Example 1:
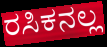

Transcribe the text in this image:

ರಸಿಕನಲ್ಲ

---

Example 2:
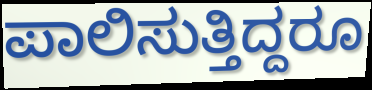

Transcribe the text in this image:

ಪಾಲಿಸುತ್ತಿದ್ದರೂ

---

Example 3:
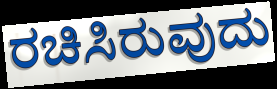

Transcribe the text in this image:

ರಚಿಸಿರುವುದು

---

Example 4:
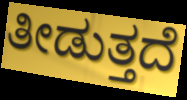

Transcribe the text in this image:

ತೀಡುತ್ತದೆ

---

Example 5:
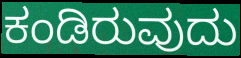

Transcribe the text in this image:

ಕಂಡಿರುವುದು